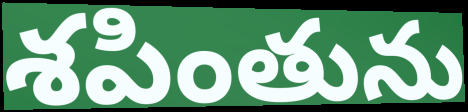
శపింతును